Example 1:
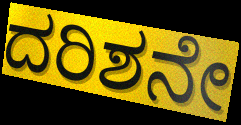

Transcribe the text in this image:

ದರಿಶನೇ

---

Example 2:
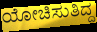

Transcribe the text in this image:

ಯೋಚಿಸುತಿದ್ದ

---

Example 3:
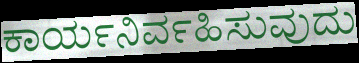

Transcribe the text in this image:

ಕಾರ್ಯನಿರ್ವಹಿಸುವುದು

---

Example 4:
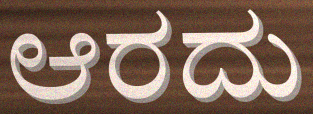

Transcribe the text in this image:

ಆರದು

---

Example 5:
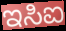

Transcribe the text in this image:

ಇಸಿಐ